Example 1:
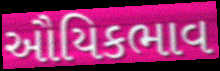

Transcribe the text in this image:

ઔયિકભાવ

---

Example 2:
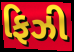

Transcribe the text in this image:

ફિઝી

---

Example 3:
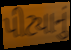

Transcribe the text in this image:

પીટ્યાનું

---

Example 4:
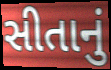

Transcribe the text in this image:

સીતાનું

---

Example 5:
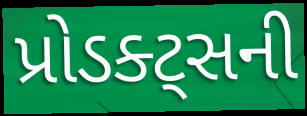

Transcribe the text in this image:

પ્રોડક્ટ્સની